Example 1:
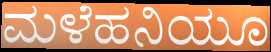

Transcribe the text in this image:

ಮಳೆಹನಿಯೂ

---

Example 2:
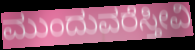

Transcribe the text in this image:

ಮುಂದುವರೆಸ್ತೀವಿ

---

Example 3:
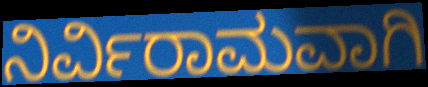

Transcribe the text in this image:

ನಿರ್ವಿರಾಮವಾಗಿ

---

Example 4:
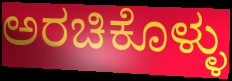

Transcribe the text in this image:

ಅರಚಿಕೊಳ್ಳು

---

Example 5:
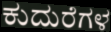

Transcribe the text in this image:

ಕುದುರೆಗಳ